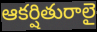
ఆకర్షితురాలై